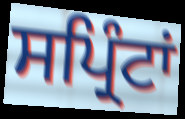
ਸਪ੍ਰਿੰਟਾਂ